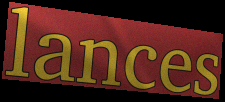
lances